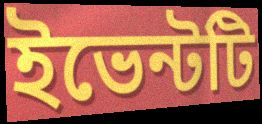
ইভেন্টটি